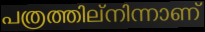
പത്രത്തില്നിന്നാണ്